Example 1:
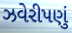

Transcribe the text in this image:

ઝવેરીપણું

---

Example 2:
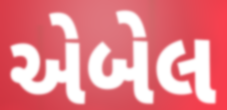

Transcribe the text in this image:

એબેલ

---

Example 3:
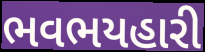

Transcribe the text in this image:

ભવભયહારી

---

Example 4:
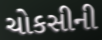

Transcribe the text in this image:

ચોકસીની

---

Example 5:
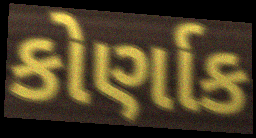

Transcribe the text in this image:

કોર્ણાક